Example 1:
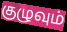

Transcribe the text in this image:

குழுவும்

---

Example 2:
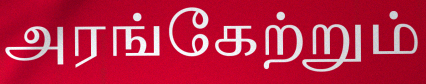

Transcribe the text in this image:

அரங்கேற்றும்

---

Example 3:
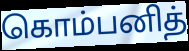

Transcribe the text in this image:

கொம்பனித்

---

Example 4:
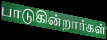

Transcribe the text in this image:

பாடுகின்றார்கள்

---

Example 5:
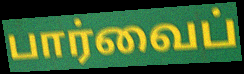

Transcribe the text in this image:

பார்வைப்